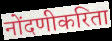
नोंदणीकरिता